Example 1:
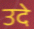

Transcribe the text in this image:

उदे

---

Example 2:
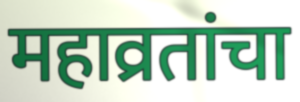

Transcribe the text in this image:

महाव्रतांचा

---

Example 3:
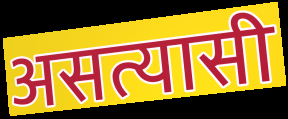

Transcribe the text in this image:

असत्यासी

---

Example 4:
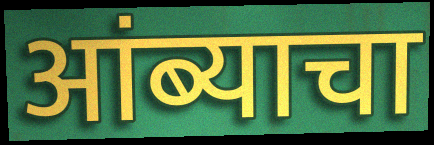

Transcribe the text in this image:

आंब्याचा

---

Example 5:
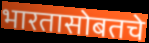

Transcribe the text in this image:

भारतासोबतचे